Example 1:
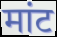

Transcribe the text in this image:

मांट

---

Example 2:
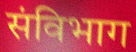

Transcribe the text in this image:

संविभाग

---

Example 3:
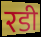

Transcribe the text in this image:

रडी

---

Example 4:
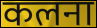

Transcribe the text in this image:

कलना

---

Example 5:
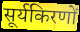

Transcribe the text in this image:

सूर्यकिरणों